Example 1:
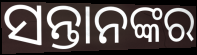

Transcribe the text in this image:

ସନ୍ତାନଙ୍କର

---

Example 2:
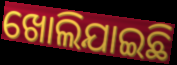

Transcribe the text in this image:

ଖୋଲିଯାଇଛି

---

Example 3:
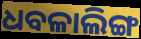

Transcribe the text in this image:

ଧବଳାଲିଙ୍ଗ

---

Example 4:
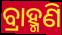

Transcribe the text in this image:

ବ୍ରାହ୍ମଣି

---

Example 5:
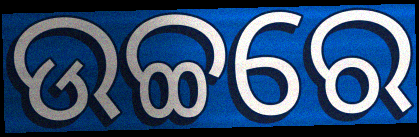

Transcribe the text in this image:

ଉଚ୍ଚରେ